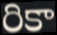
రికా